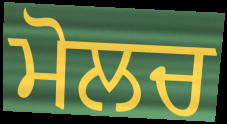
ਮੋਲਚ